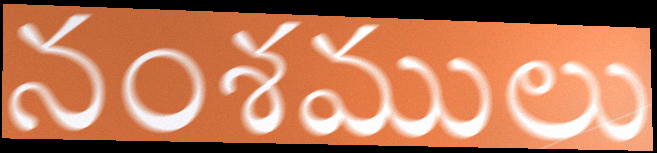
నంశములు